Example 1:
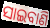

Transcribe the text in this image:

ସାଇବାଣି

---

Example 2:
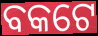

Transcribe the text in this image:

ବକଟେ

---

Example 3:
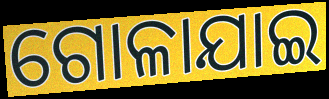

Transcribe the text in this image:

ଗୋଳାଯାଇ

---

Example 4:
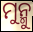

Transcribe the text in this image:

ମୁନ୍ମୁ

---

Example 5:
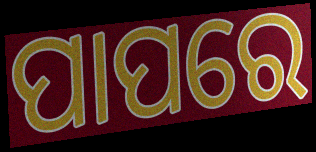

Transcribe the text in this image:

ପାପରେ